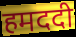
हमददी